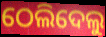
ଠେଲିଦେଲୁ